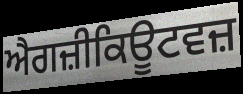
ਐਗਜ਼ੀਕਿਊਟਵਜ਼